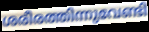
ശരീരത്തിന്നുവേണ്ടി